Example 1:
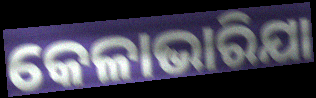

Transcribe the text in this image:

କେଳାଭାରିଯା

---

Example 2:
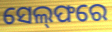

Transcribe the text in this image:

ସେଲ୍‌ଫରେ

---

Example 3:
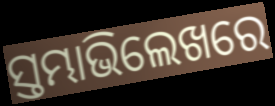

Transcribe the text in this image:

ସ୍ତମ୍ଭାଭିଲେଖରେ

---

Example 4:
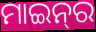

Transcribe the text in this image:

ମାଇନ୍‍ର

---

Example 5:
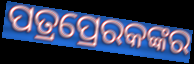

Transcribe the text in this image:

ପତ୍ରପ୍ରେରକଙ୍କର